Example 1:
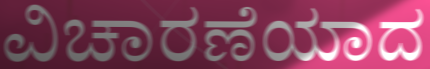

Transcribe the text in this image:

ವಿಚಾರಣೆಯಾದ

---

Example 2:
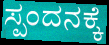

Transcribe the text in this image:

ಸ್ಪಂದನಕ್ಕೆ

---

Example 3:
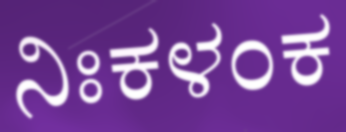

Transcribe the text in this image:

ನಿಃಕಳಂಕ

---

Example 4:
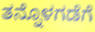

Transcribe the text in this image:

ತನ್ನೊಳಗಡೆಗೆ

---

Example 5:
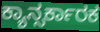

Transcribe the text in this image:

ಕ್ಯಾನ್ಸರ್ಕಾರಕ